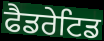
ਫੈਡਰੇਟਿਡ